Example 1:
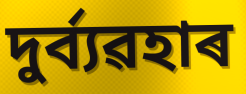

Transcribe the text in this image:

দুৰ্ব্যৱহাৰ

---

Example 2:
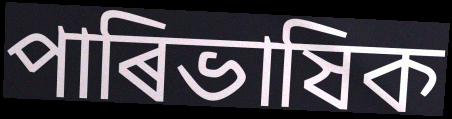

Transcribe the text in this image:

পাৰিভাষিক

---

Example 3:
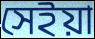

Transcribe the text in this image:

সেইয়া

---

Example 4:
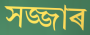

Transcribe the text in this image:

সজ্জাৰ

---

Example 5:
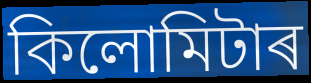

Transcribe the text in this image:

কিলোমিটাৰ